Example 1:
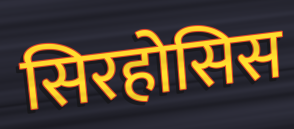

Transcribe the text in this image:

सिरहोसिस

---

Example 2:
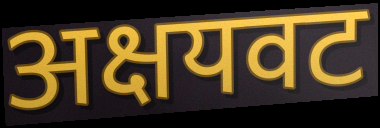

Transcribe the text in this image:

अक्षयवट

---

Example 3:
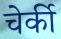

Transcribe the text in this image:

चेर्की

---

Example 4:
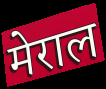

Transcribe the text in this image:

मेराल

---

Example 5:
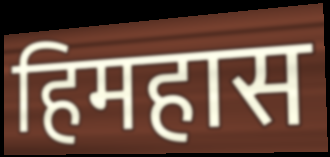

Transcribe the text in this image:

हिमहास